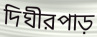
দিঘীরপাড়